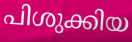
പിശുക്കിയ